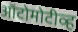
ऑटोमोटीव्ह